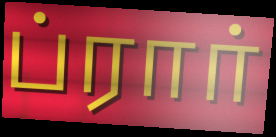
ப்ரார்